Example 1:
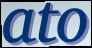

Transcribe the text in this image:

ato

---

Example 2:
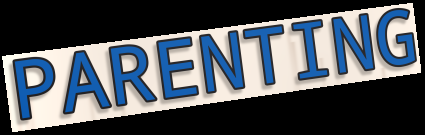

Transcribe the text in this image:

PARENTING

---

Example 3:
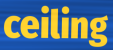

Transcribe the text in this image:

ceiling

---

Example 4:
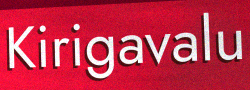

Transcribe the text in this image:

Kirigavalu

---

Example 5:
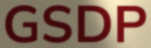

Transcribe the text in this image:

GSDP